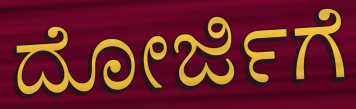
ದೋರ್ಜಿಗೆ